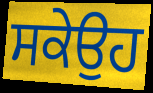
ਸਕੇਉਹ